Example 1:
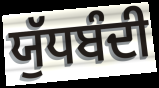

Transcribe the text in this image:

ਯੁੱਧਬੰਦੀ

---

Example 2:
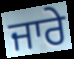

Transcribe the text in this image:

ਜਾਰੇ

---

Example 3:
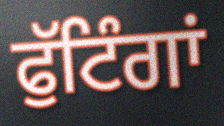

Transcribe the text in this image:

ਫੁੱਟਿੰਗਾਂ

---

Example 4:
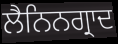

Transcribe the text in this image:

ਲੈਨਿਨਗ੍ਰਾਦ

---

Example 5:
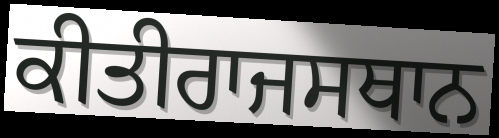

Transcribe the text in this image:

ਕੀਤੀਰਾਜਸਥਾਨ